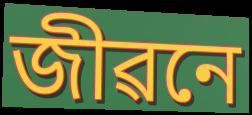
জীৱনে